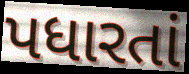
પધારતાં